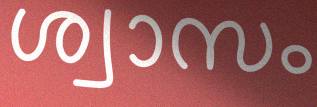
ശ്വാസം